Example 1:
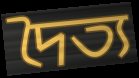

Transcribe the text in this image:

দৈত্য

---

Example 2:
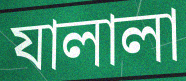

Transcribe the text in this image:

যালালা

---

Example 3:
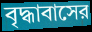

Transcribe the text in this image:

বৃদ্ধাবাসের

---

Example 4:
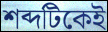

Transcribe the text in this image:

শব্দটিকেই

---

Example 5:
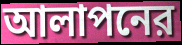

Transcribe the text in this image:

আলাপনের